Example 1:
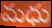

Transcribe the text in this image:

మధు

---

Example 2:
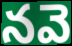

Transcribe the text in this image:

నవె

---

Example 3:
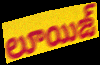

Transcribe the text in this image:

లూయిజ్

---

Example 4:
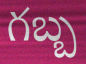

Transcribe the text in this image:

గబ్బ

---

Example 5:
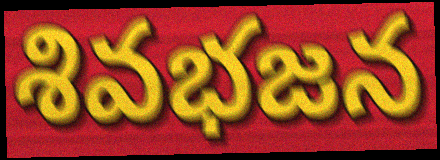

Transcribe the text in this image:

శివభజన